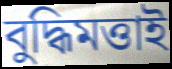
বুদ্ধিমত্তাই